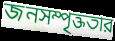
জনসম্পৃক্ততার